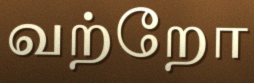
வற்றோ